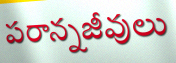
పరాన్నజీవులు